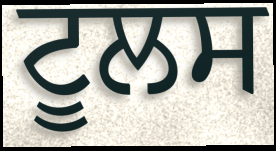
ਟੂਲਸ